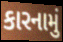
કારનામું